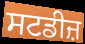
ਸਟਡੀਜ਼